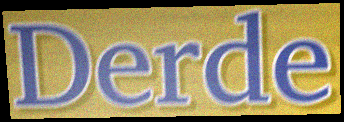
Derde